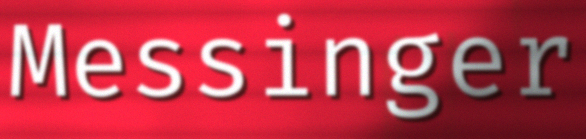
Messinger